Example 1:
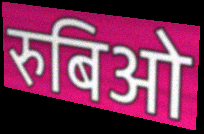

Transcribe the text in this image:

रुबिओ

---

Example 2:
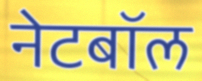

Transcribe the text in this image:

नेटबॉल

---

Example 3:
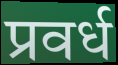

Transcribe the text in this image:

प्रवर्ध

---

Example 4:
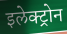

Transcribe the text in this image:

इलेक्ट्रोन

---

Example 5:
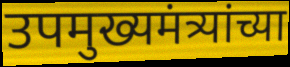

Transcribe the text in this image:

उपमुख्यमंत्र्यांच्या